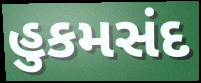
હુકમસંદ